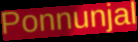
Ponnunjal